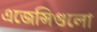
এজেন্সিগুলো